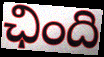
ఛింది